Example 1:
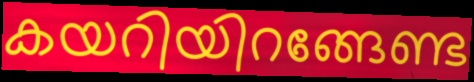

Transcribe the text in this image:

കയറിയിറങ്ങേണ്ട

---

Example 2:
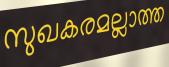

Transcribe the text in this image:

സുഖകരമല്ലാത്ത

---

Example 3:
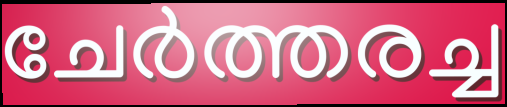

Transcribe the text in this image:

ചേർത്തരച്ച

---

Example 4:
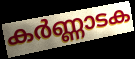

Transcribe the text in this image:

കർണ്ണാടക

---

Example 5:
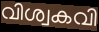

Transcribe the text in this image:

വിശ്വകവി